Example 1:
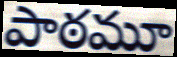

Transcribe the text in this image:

పాఠమూ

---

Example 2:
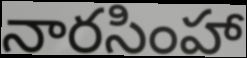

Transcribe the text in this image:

నారసింహా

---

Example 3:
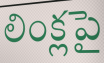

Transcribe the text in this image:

లింక్లపై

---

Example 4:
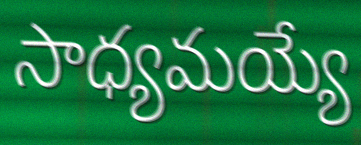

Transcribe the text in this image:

సాధ్యమయ్యే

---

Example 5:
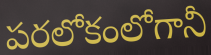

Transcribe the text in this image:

పరలోకంలోగానీ